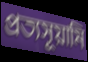
প্রত্যসূয়ামি